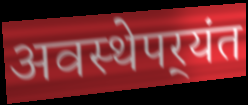
अवस्थेपर्यंत